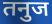
तनुज